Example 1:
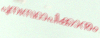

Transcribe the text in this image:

പുനഃസ്ഥാപിക്കാനും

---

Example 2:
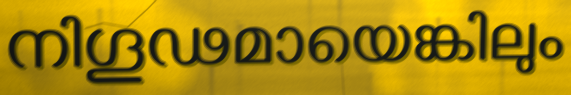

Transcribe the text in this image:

നിഗൂഢമായെങ്കിലും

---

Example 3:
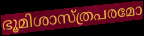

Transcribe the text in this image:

ഭൂമിശാസ്ത്രപരമോ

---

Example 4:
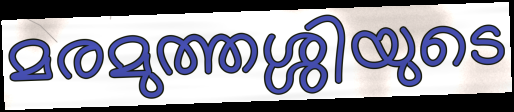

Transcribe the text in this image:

മരമുത്തശ്ശിയുടെ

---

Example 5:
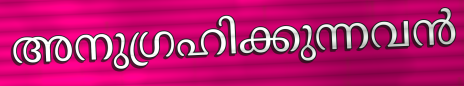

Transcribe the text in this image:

അനുഗ്രഹിക്കുന്നവൻ